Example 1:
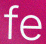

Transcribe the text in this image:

fe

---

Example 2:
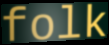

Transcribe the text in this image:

folk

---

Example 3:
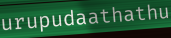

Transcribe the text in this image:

urupudaathathu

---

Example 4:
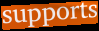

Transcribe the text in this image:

supports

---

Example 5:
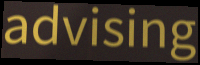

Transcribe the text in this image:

advising